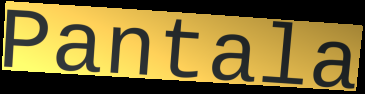
Pantala